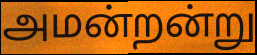
அமன்றன்று